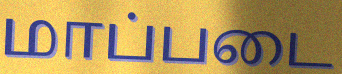
மாப்படை